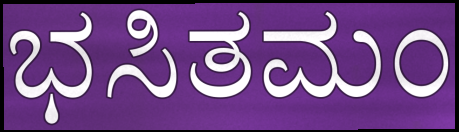
ಭಸಿತಮಂ